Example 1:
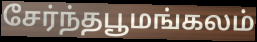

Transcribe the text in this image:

சேர்ந்தபூமங்கலம்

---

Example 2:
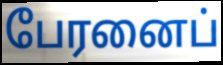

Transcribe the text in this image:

பேரனைப்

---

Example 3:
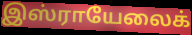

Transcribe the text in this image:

இஸ்ராயேலைக்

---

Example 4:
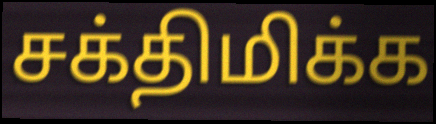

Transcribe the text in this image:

சக்திமிக்க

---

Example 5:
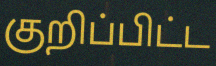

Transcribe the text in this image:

குறிப்பிட்ட